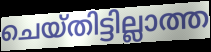
ചെയ്തിട്ടില്ലാത്ത